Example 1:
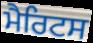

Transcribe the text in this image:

ਮੈਰਿਟਸ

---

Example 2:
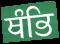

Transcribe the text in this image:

ਥੰਭਿ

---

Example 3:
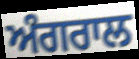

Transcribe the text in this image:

ਅੰਗਰਾਲ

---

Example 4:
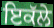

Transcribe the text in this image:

ਇਕੱਲੇ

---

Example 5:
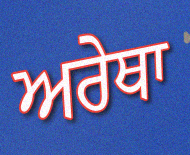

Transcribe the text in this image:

ਅਰੇਥਾ